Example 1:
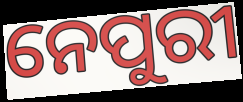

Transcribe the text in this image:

ନେପୁରୀ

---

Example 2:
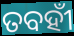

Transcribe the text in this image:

ତବହୀଁ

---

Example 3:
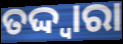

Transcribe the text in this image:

ତଦ୍ଦ୍ଵାରା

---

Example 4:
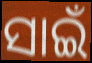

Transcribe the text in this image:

ସାଇଁ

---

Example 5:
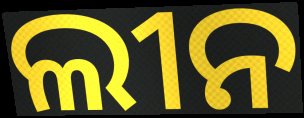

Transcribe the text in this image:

ଲୀନ